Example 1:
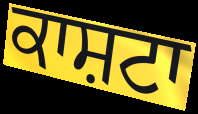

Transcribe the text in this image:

ਕਾਸ਼ਟਾ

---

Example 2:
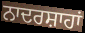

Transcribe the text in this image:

ਨਾਦਰਸ਼ਾਹਾਂ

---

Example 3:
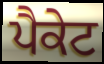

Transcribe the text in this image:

ਪੈਕੇਟ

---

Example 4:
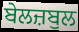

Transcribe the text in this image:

ਬੇਲਜ਼ਬੁਲ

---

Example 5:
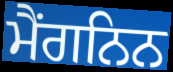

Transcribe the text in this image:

ਮੈਂਗਨਿਨ